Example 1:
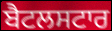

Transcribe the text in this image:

ਬੈਟਲਸਟਾਰ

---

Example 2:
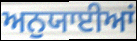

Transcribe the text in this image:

ਅਨੁਯਾਈਆਂ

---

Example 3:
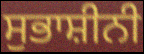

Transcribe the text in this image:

ਸੁਭਾਸ਼ੀਨੀ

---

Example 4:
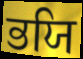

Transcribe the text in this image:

ਭਯਿ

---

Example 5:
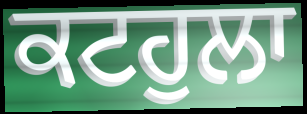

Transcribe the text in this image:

ਕਟਹੁਲਾ